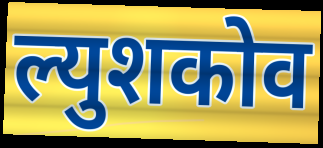
ल्युशकोव